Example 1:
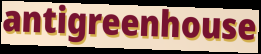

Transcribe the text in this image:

antigreenhouse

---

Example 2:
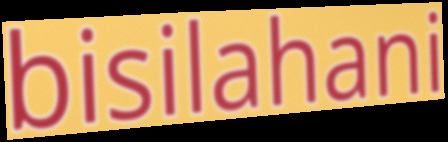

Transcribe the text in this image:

bisilahani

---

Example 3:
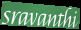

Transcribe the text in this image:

sravanthi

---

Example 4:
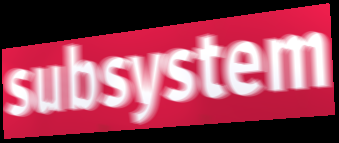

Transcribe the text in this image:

subsystem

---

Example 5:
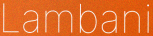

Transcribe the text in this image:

Lambani